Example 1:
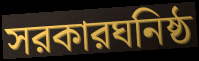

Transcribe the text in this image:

সরকারঘনিষ্ঠ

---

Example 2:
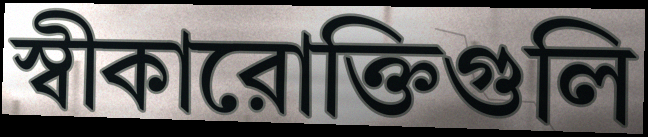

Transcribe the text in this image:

স্বীকারোক্তিগুলি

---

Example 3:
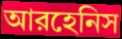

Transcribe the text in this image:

আরহেনিস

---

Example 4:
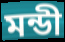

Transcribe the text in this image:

মন্ডী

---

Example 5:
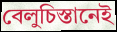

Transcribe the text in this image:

বেলুচিস্তানেই